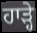
ਹਾੜ੍ਹੇ